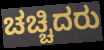
ಚಚ್ಚಿದರು